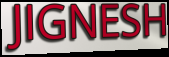
JIGNESH